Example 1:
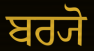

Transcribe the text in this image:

ਬਰ੍ਯੋ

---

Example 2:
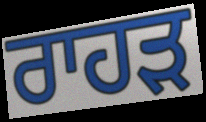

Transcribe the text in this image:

ਰਾਹੜ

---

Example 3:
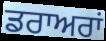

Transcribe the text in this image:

ਡਰਾਅਰਾਂ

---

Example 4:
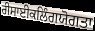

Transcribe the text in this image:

ਰੀਸਾਈਕਲਿੰਗਯੋਗਤਾ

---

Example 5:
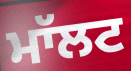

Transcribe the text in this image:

ਮਾੱਲਟ